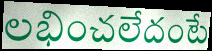
లభించలేదంటే